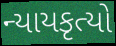
ન્યાયકૃત્યો